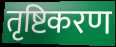
तृष्टिकरण